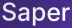
Saper